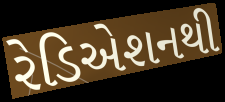
રેડિએશનથી